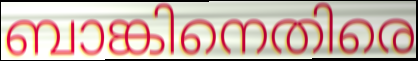
ബാങ്കിനെതിരെ